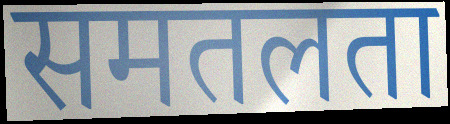
समतलता